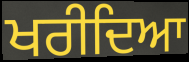
ਖਰੀਦਿਆ